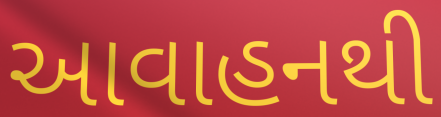
આવાહનથી